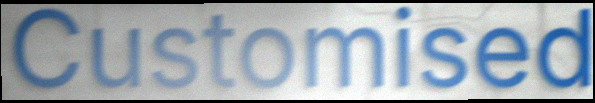
Customised